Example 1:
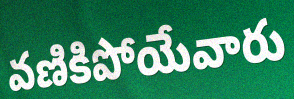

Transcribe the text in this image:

వణికిపోయేవారు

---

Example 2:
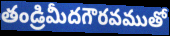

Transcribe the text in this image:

తండ్రిమీదగౌరవముతో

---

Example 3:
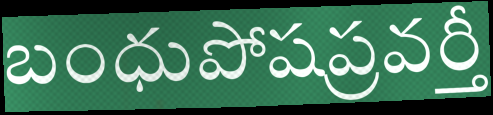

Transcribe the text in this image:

బంధుపోషప్రవర్తీ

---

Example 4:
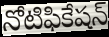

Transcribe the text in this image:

నోటిఫికేషన్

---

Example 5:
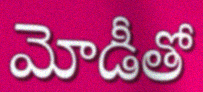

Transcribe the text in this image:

మోడీతో